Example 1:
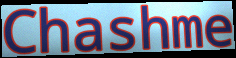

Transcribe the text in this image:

Chashme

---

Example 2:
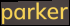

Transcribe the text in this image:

parker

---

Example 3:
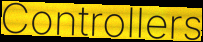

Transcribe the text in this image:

Controllers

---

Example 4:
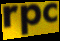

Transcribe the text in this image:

rpc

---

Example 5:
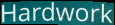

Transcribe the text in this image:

Hardwork